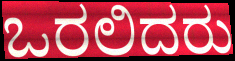
ಒರಲಿದರು